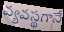
వ్యవస్థగానే